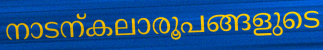
നാടന്കലാരൂപങ്ങളുടെ